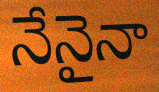
నేనైనా